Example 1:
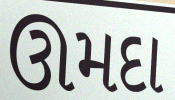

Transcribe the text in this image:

ઊમદા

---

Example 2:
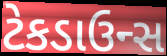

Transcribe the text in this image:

ટેકડાઉન્સ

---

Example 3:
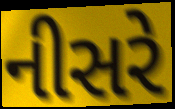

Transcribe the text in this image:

નીસરે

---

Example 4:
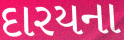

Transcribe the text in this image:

દારયના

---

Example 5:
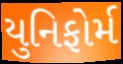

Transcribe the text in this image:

યુનિફોર્મ